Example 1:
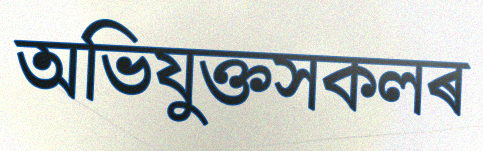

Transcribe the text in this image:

অভিযুক্তসকলৰ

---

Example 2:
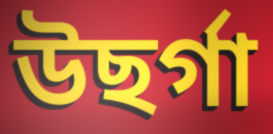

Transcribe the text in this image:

উছৰ্গা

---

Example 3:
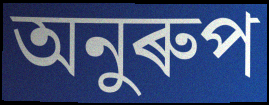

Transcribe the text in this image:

অনুৰুপ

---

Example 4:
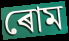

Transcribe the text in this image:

ৰোম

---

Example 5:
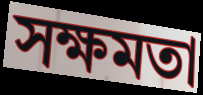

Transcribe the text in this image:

সক্ষমতা